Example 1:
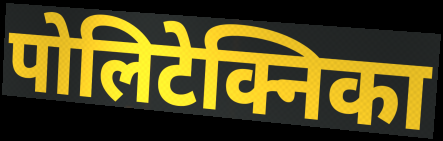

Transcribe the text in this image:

पोलिटेक्निका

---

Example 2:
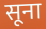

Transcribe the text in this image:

सूना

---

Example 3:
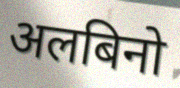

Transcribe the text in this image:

अलबिनो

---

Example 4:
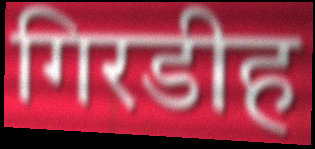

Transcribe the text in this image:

गिरडीह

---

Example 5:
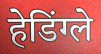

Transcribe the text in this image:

हेडिंग्‍ले